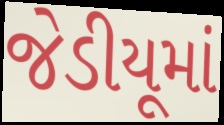
જેડીયૂમાં